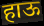
हाऊ